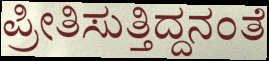
ಪ್ರೀತಿಸುತ್ತಿದ್ದನಂತೆ